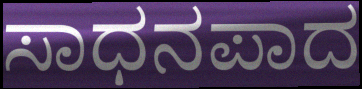
ಸಾಧನಪಾದ